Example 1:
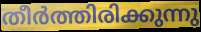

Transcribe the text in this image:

തീർത്തിരിക്കുന്നു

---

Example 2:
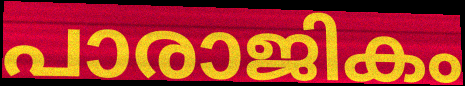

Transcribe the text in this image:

പാരാജികം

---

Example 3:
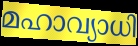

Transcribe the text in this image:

മഹാവ്യാധി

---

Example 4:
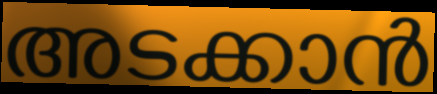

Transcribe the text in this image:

അടക്കാൻ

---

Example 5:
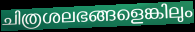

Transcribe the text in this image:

ചിത്രശലഭങ്ങളെങ്കിലും